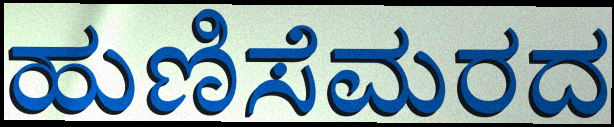
ಹುಣಿಸೆಮರದ